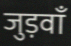
जुड़वाँ